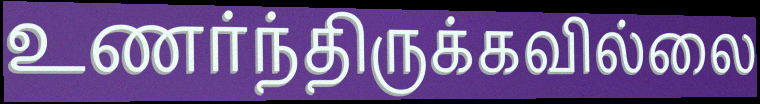
உணர்ந்திருக்கவில்லை